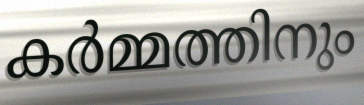
കർമ്മത്തിനും